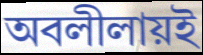
অবলীলায়ই